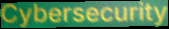
Cybersecurity